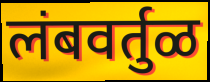
लंबवर्तुळ